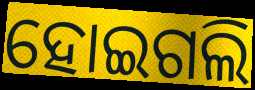
ହୋଇଗଲି